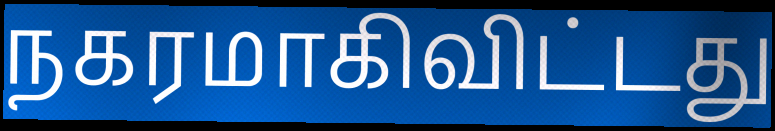
நகரமாகிவிட்டது